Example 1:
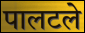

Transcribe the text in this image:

पालटले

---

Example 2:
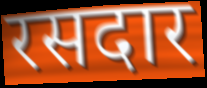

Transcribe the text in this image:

रसदार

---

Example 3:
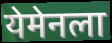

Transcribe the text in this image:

येमेनला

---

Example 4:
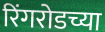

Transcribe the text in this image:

रिंगरोडच्या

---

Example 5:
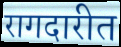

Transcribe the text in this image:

रागदारीत